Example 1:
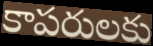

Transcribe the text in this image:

కాపరులకు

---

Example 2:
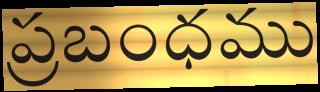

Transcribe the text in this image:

ప్రబంధము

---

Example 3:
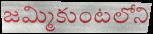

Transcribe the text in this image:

జమ్మికుంటలోని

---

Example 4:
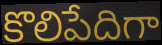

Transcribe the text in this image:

కొలిపేదిగా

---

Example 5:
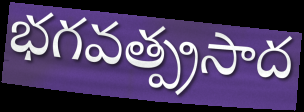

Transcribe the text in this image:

భగవత్ప్రసాద